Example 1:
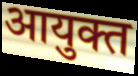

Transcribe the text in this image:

आयुक्त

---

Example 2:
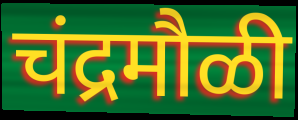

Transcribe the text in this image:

चंद्रमौळी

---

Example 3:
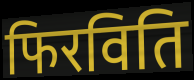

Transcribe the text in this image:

फिरविति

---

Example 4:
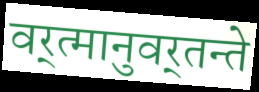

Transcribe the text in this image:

वर्त्मानुवर्तन्ते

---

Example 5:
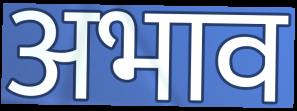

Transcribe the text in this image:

अभाव